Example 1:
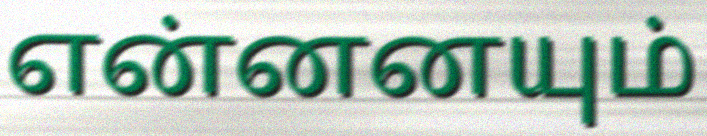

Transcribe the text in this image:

என்னனயும்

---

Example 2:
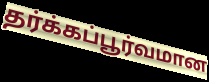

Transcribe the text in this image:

தர்க்கப்பூர்வமான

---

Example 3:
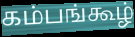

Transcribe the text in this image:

கம்பங்கூழ்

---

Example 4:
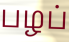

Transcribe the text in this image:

பழப்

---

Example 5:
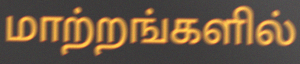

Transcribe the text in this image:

மாற்றங்களில்